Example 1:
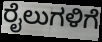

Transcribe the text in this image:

ರೈಲುಗಳಿಗೆ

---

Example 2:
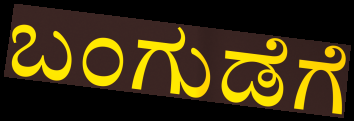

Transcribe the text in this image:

ಬಂಗುಡೆಗೆ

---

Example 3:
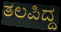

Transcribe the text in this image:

ತಲಪಿದ್ದ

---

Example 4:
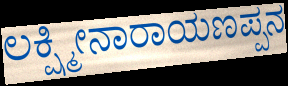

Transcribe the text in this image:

ಲಕ್ಷ್ಮೀನಾರಾಯಣಪ್ಪನ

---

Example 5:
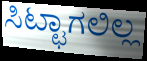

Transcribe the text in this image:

ಸಿಟ್ಟಾಗಲಿಲ್ಲ